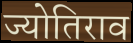
ज्योतिराव